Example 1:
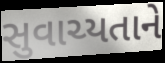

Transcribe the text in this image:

સુવાચ્યતાને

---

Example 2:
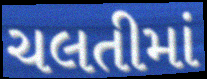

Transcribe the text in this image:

ચલતીમાં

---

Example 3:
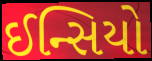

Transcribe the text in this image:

ઈન્સિયો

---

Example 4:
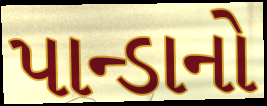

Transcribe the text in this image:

પાન્ડાનો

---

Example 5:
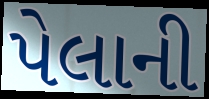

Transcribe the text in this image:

પેલાની